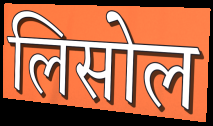
लिसोल